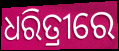
ଧରିତ୍ରୀରେ